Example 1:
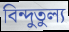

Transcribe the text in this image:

বিন্দুতুল্য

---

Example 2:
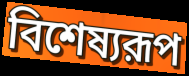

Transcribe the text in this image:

বিশেষ্যরূপ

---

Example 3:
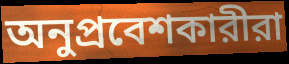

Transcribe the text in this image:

অনুপ্রবেশকারীরা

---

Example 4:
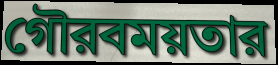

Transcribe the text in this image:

গৌরবময়তার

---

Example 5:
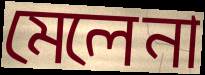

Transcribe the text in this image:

মেলেনা